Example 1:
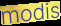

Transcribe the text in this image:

modis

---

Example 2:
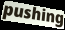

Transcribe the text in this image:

pushing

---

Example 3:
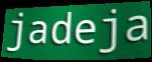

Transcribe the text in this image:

jadeja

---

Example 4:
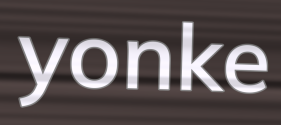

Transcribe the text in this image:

yonke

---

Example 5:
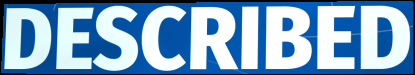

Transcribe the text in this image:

DESCRIBED